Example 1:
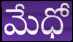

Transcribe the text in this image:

మేధో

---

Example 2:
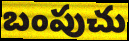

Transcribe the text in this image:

బంపుచు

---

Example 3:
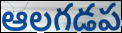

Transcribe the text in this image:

ఆలగడప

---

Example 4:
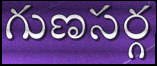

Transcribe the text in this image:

గుణసర్గ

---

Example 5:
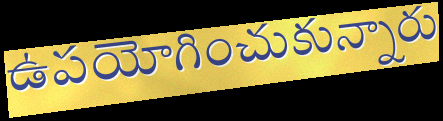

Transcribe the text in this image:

ఉపయోగించుకున్నారు